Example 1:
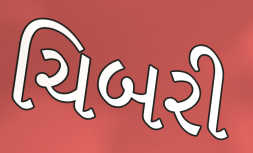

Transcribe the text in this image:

ચિબરી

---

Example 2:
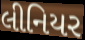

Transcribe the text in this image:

લીનિયર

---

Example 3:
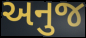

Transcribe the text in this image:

અનુજ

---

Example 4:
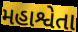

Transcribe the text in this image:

મહાશ્વેતા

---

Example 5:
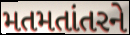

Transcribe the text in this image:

મતમતાંતરને